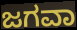
ಜಗವಾ